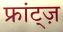
फ्रांट्ज़